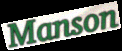
Manson